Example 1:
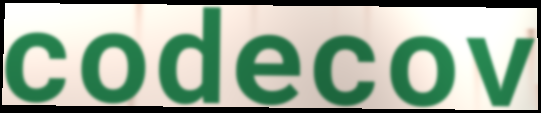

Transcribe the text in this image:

codecov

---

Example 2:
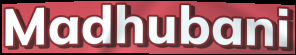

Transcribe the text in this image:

Madhubani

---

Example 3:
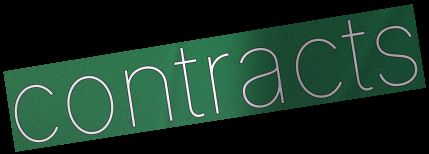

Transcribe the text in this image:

contracts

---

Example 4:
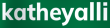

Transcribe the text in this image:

katheyalli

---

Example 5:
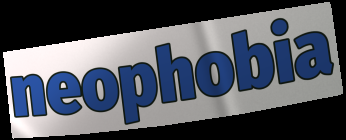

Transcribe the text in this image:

neophobia